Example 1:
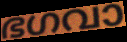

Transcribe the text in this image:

ഭഗവാ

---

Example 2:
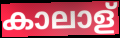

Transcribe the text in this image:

കാലാള്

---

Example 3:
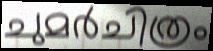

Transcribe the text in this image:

ചുമർചിത്രം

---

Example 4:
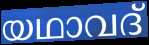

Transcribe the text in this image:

യഥാവദ്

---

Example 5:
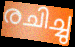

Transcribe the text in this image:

രചിച്ചു